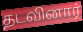
தடவினார்